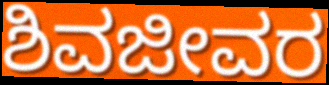
ಶಿವಜೀವರ